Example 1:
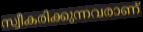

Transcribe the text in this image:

സ്വീകരിക്കുന്നവരാണ്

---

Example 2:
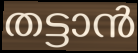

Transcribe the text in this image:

തട്ടാൻ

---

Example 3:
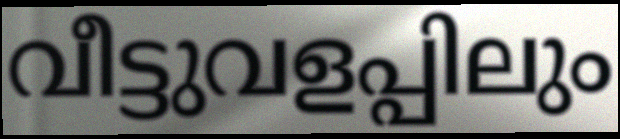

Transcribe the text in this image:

വീട്ടുവളപ്പിലും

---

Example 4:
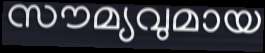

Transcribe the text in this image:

സൗമ്യവുമായ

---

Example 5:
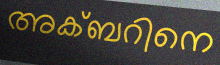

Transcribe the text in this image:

അക്ബറിനെ